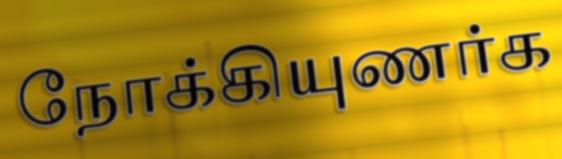
நோக்கியுணர்க